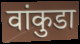
वांकुडा